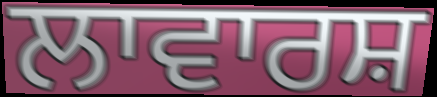
ਲਾਵਾਰਸ਼